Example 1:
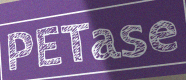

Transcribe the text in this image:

PETase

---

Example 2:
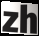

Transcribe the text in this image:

zh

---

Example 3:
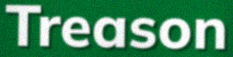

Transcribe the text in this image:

Treason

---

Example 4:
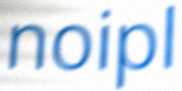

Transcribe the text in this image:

noipl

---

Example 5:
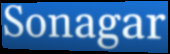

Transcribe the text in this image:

Sonagar